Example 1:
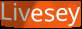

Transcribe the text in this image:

Livesey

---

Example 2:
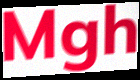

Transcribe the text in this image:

Mgh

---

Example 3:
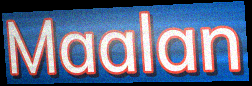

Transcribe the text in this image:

Maalan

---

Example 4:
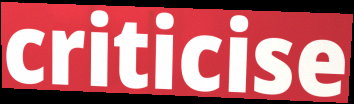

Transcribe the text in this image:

criticise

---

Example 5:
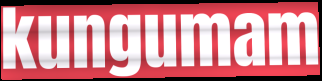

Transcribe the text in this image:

kungumam